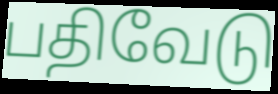
பதிவேடு